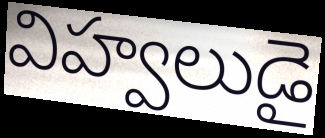
విహ్వలుడై